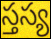
స్తస్య